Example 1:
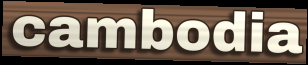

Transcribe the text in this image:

cambodia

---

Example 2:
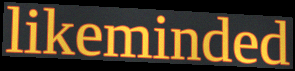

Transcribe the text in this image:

likeminded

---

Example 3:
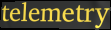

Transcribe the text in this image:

telemetry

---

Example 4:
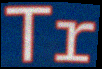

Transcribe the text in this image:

Tr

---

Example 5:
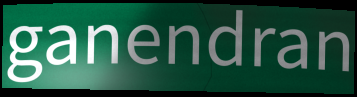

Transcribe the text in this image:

ganendran